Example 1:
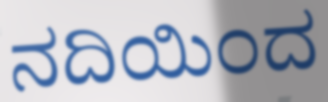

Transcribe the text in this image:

ನದಿಯಿಂದ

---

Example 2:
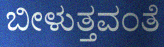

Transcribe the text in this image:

ಬೀಳುತ್ತವಂತೆ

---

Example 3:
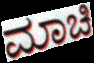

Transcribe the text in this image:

ಮಾಚಿ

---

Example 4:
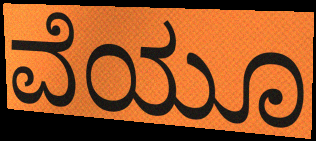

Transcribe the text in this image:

ವೆಯೂ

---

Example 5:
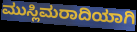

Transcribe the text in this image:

ಮುಸ್ಲಿಮರಾದಿಯಾಗಿ